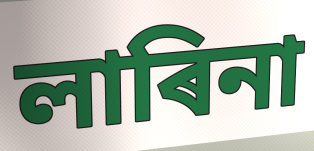
লাৰিনা